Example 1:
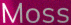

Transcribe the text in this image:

Moss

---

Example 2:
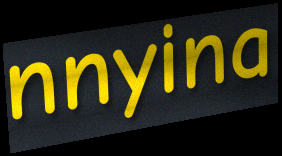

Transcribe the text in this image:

nnyina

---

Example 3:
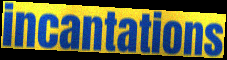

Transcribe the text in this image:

incantations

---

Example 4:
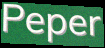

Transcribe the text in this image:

Peper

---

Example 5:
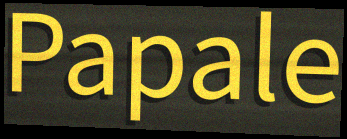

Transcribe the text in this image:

Papale